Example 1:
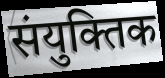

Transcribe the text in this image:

संयुक्‍तिक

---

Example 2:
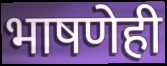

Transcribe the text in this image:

भाषणेही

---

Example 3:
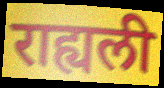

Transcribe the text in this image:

राह्यली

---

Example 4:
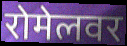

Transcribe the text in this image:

रोमेलवर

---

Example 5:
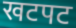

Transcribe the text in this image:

खटपट